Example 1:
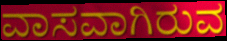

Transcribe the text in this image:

ವಾಸವಾಗಿರುವ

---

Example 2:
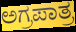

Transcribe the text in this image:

ಅಗ್ರಪಾತ್ರ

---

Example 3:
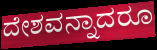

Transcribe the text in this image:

ದೇಶವನ್ನಾದರೂ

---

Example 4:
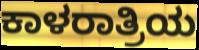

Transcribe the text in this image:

ಕಾಳರಾತ್ರಿಯ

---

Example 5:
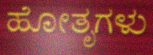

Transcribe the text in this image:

ಹೋತೃಗಳು